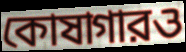
কোষাগারও